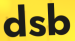
dsb